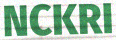
NCKRI